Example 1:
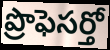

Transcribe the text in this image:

ప్రొఫెసర్తో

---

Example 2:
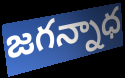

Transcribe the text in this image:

జగన్నాధ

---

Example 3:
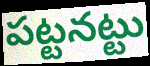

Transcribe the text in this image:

పట్టనట్టు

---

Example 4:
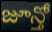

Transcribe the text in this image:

జూన్తో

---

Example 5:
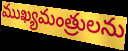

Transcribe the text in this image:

ముఖ్యమంత్రులను